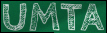
UMTA